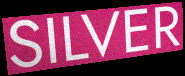
SILVER